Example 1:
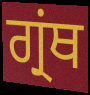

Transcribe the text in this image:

ਗ੍ਰਂਥ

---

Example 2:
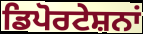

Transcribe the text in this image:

ਡਿਪੋਰਟੇਸ਼ਨਾਂ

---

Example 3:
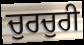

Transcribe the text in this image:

ਚੁਰਚੁਰੀ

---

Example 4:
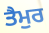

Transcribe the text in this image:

ਤੈਮੁਰ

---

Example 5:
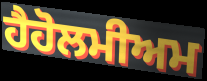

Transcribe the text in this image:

ਹੈਹੋਲਮੀਅਮ